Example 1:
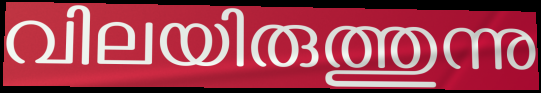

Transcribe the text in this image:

വിലയിരുത്തുന്നു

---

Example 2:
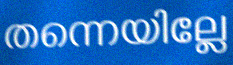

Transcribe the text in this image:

തന്നെയില്ലേ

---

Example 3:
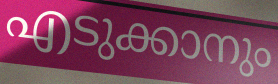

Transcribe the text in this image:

എടുക്കാനും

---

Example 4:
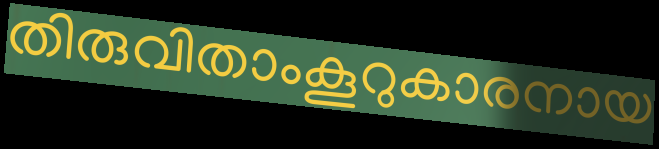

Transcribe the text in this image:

തിരുവിതാംകൂറുകാരനായ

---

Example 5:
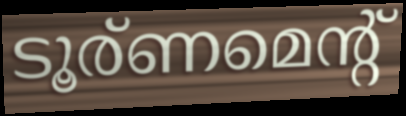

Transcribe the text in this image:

ടൂര്ണമെന്റ്